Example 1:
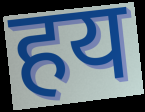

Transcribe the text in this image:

हय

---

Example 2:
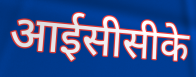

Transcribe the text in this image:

आईसीसीके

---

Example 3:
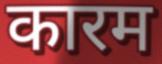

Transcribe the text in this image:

कारम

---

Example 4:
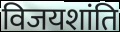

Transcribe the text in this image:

विजयशांति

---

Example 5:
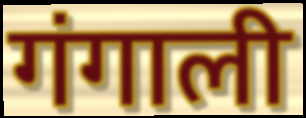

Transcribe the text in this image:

गंगाली